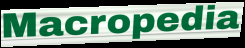
Macropedia